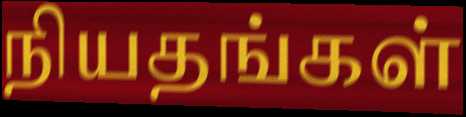
நியதங்கள்